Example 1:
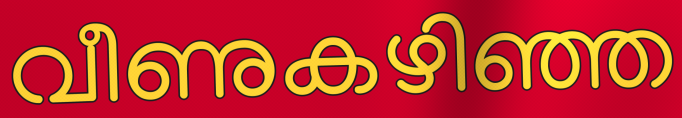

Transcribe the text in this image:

വീണുകഴിഞ്ഞ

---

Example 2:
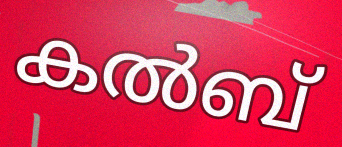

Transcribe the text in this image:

കൽബ്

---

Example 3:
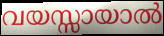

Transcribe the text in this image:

വയസ്സായാൽ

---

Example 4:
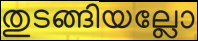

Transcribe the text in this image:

തുടങ്ങിയല്ലോ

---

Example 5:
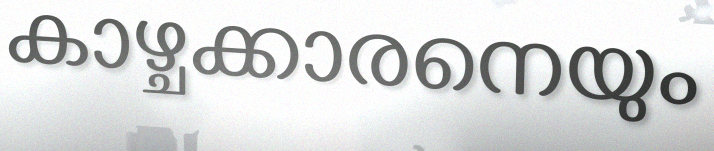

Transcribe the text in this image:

കാഴ്ചക്കാരനെയും